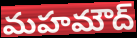
మహమౌద్